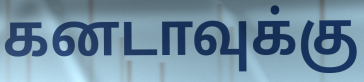
கனடாவுக்கு